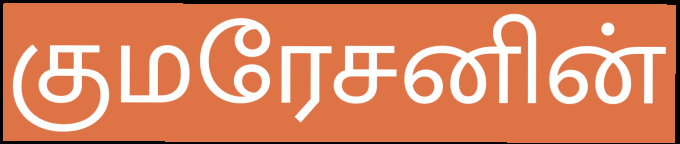
குமரேசனின்